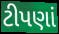
ટીપણાં